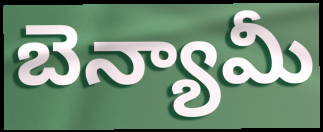
బెన్యామీ